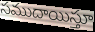
సముదాయిస్తూ